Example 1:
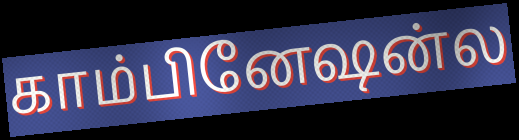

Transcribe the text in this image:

காம்பினேஷன்ல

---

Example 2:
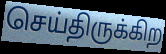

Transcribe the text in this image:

செய்திருக்கிற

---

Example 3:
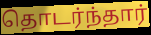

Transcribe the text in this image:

தொடர்ந்தார்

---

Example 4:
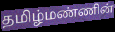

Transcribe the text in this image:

தமிழ்மண்ணின்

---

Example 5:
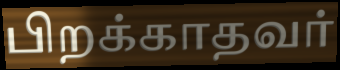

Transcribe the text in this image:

பிறக்காதவர்